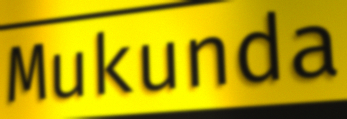
Mukunda